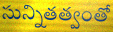
సున్నితత్వంతో